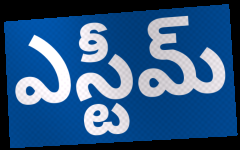
ఎస్టీమ్